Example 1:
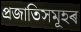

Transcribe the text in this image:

প্ৰজাতিসমূহৰ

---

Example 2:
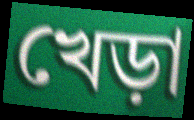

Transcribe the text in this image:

খেড়া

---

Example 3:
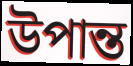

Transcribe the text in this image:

উপান্ত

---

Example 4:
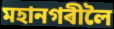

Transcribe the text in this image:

মহানগৰীলৈ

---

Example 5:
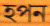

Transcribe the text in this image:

হপন